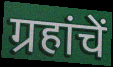
ग्रहांचें